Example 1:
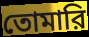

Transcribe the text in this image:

তোমারি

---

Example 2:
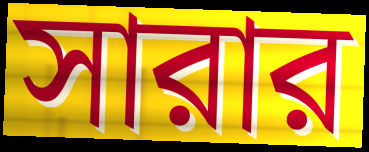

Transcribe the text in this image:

সারার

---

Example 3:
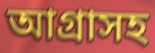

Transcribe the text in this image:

আগ্রাসহ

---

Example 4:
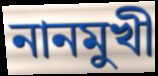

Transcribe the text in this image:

নানমুখী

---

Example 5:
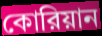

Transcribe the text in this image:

কোরিয়ান